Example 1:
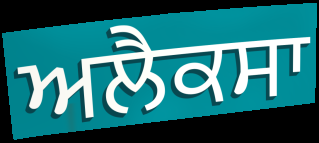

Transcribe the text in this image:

ਅਲੈਕਸਾ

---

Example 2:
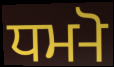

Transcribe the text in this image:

ਧਮ੍ਮੋ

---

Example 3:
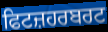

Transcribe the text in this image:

ਫਿਟਜ਼ਹਰਬਰਟ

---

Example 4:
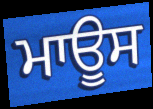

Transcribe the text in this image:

ਮਾਊਸ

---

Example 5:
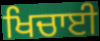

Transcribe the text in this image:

ਖਿਚਾਈ